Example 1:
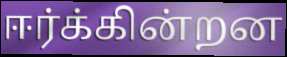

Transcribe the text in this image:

ஈர்க்கின்றன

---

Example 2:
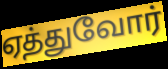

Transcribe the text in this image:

ஏத்துவோர்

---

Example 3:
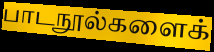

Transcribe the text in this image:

பாடநூல்களைக்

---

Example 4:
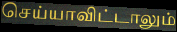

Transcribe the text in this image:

செய்யாவிட்டாலும்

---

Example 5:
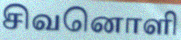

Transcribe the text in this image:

சிவனொளி